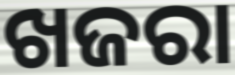
ଖଜରା